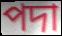
পদা